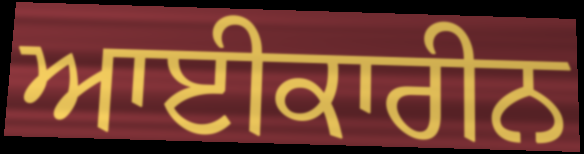
ਆਈਕਾਰੀਨ